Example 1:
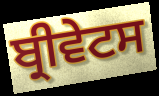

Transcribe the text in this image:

ਬ੍ਰੀਵੇਟਸ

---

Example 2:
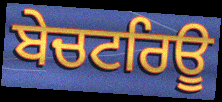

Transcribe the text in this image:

ਬੇਚਟਰਿਊ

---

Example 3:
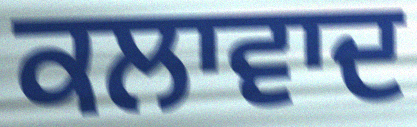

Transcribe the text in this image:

ਕਲਾਵਾਦ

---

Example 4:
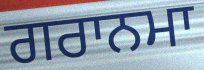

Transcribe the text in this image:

ਗਰਾਨਮਾ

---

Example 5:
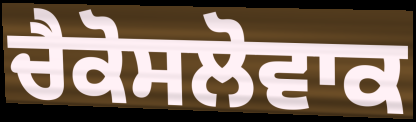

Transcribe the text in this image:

ਚੈਕੋਸਲੋਵਾਕ